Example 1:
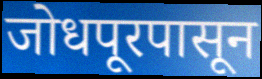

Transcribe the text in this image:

जोधपूरपासून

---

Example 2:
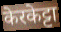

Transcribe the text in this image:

केरकेट्टा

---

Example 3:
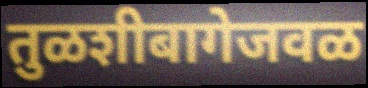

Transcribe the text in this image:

तुळशीबागेजवळ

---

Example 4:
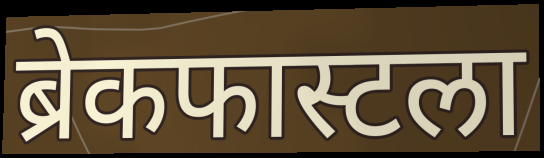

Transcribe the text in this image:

ब्रेकफास्टला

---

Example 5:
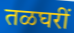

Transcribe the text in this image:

तळघरीं